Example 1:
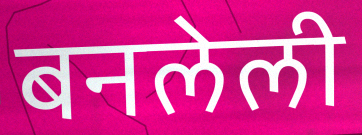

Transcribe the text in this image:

बनलेली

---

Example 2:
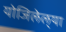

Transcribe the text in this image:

योजिलेल्या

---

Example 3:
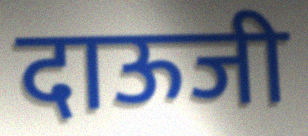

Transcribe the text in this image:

दाऊजी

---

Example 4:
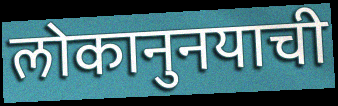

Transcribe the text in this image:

लोकानुनयाची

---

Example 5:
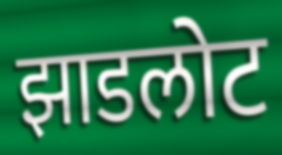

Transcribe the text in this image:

झाडलोट